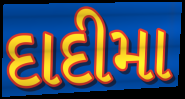
દાદીમા